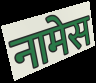
नामेस